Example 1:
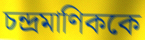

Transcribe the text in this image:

চন্দ্রমাণিককে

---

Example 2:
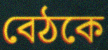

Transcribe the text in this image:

বেঠকে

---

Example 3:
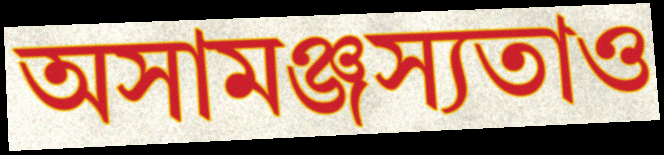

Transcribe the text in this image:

অসামঞ্জস্যতাও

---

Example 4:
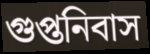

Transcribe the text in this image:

গুপ্তনিবাস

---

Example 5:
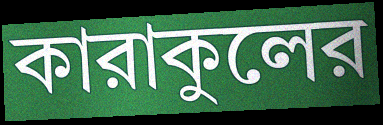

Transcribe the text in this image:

কারাকুলের